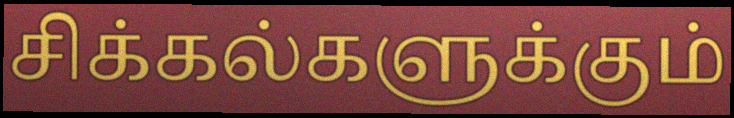
சிக்கல்களுக்கும்